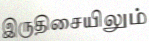
இருதிசையிலும்